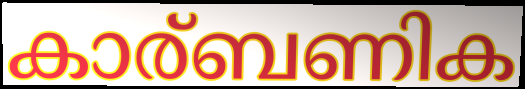
കാര്ബണിക